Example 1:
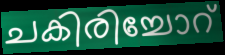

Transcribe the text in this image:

ചകിരിച്ചോറ്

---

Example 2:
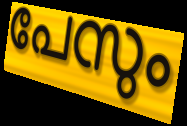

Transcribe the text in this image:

പേസും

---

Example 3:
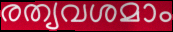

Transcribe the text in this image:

രത്യവശമാം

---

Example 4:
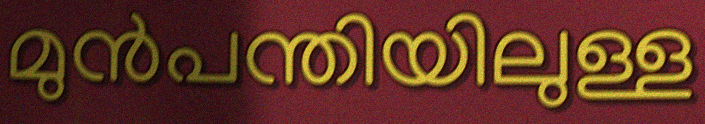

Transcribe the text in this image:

മുൻപന്തിയിലുള്ള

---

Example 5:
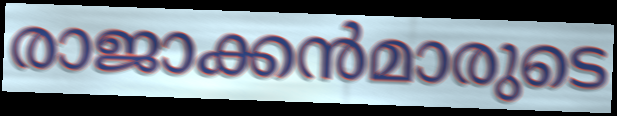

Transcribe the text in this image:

രാജാക്കൻമാരുടെ